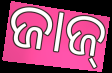
ଜାଜ୍